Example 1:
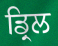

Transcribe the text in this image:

ਡ੍ਰਿਲ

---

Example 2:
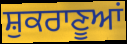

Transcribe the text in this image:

ਸ਼ੁਕਰਾਣੂਆਂ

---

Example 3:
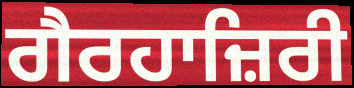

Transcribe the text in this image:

ਗੈਰਹਾਜ਼ਿਰੀ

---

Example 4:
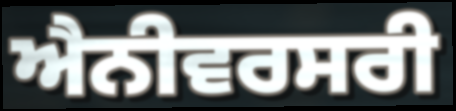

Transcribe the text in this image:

ਐਨੀਵਰਸਰੀ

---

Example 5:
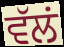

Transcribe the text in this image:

ਵੱਲਂ